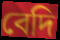
বেদি